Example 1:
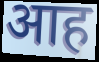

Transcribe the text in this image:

आह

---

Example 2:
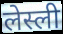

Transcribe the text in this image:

लेस्ली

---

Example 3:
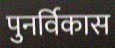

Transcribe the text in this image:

पुनर्विकास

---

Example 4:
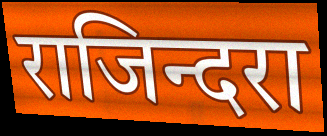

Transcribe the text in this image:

राजिन्दरा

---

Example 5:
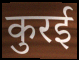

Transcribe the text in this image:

कुरई